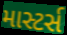
માસ્ટર્સ